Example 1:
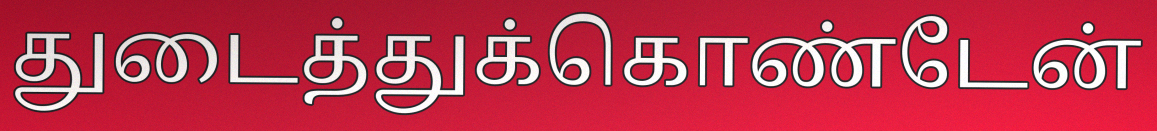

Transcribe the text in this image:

துடைத்துக்கொண்டேன்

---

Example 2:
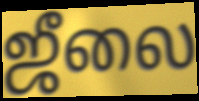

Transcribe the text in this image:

ஜீலை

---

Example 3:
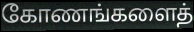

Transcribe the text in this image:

கோணங்களைத்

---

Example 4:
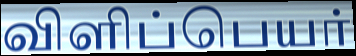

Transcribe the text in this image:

விளிப்பெயர்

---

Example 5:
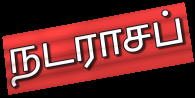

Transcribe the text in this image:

நடராசப்